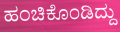
ಹಂಚಿಕೊಂಡಿದ್ದು